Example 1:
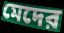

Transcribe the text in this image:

মেদের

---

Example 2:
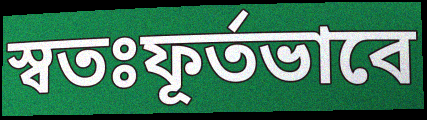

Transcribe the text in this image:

স্বতঃফূর্তভাবে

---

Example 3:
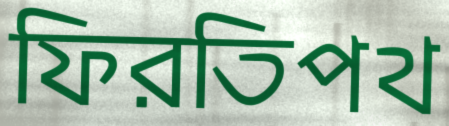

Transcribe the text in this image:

ফিরতিপথ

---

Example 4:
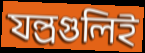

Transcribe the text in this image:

যন্ত্রগুলিই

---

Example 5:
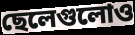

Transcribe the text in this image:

ছেলেগুলোও